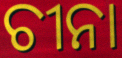
ଚୀନା